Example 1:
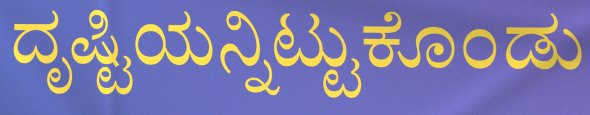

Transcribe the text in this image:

ದೃಷ್ಟಿಯನ್ನಿಟ್ಟುಕೊಂಡು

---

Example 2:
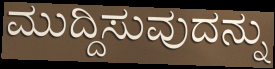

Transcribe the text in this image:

ಮುದ್ದಿಸುವುದನ್ನು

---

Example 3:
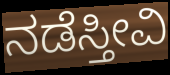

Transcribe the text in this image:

ನಡೆಸ್ತೀವಿ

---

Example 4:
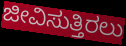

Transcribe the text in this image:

ಜೀವಿಸುತ್ತಿರಲು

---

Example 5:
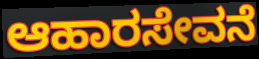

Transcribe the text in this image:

ಆಹಾರಸೇವನೆ